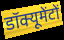
डॉक्यूमेंटों